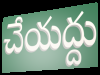
చేయద్దు